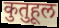
कुतुहूल